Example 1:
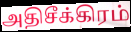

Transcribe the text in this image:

அதிசீக்கிரம்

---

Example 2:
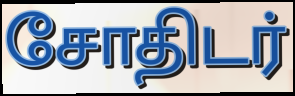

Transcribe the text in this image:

சோதிடர்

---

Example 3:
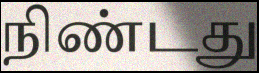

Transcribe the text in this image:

நிண்டது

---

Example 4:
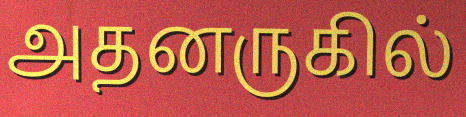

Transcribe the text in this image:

அதனருகில்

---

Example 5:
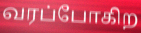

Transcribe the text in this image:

வரப்போகிற